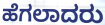
ಹೆಗಲಾದರು